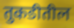
तुकडीतील